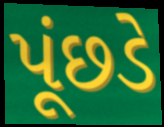
પૂંછડે